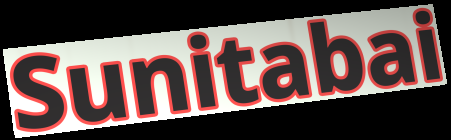
Sunitabai